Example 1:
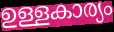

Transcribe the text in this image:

ഉള്ളകാര്യം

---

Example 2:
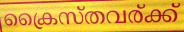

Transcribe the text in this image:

ക്രൈസ്തവര്ക്ക്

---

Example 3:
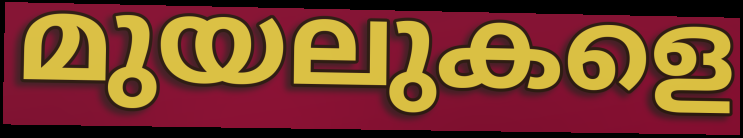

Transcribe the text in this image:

മുയലുകളെ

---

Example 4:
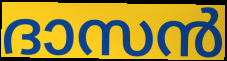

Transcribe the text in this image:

ദാസൻ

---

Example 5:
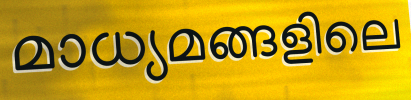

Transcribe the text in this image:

മാധ്യമങ്ങളിലെ